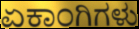
ಏಕಾಂಗಿಗಳು